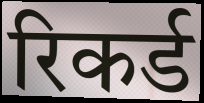
रिकर्ड